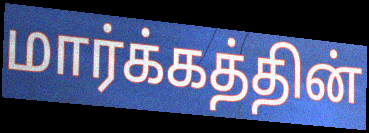
மார்க்கத்தின்